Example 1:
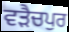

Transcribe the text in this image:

ਵੜੈਚਪੁਰ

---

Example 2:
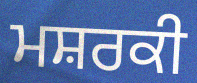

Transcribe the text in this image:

ਮਸ਼ਰਕੀ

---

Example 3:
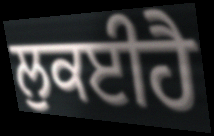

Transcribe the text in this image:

ਲੁਕਈਹੈ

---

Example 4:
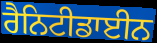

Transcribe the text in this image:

ਰੈਨਿਟੀਡਾਈਨ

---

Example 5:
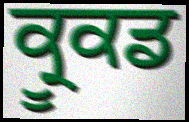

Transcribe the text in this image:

ਕ੍ਰੂਕਡ